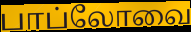
பாப்லோவை